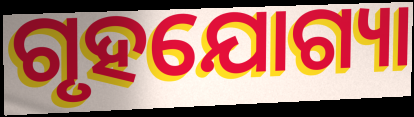
ଗୃହଯୋଗ୍ୟା